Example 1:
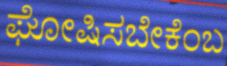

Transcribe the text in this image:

ಘೋಷಿಸಬೇಕೆಂಬ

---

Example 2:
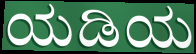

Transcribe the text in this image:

ಯಡಿಯ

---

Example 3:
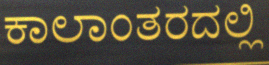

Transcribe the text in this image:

ಕಾಲಾಂತರದಲ್ಲಿ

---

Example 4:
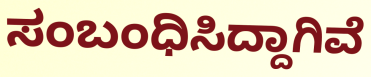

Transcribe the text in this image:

ಸಂಬಂಧಿಸಿದ್ದಾಗಿವೆ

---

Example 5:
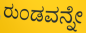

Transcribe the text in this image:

ರುಂಡವನ್ನೇ